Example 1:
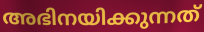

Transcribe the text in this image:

അഭിനയിക്കുന്നത്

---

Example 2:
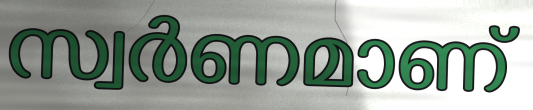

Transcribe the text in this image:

സ്വർണമാണ്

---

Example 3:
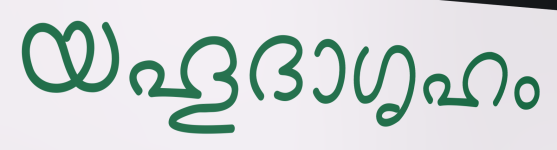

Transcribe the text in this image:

യഹൂദാഗൃഹം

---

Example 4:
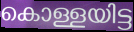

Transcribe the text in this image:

കൊള്ളയിട്ട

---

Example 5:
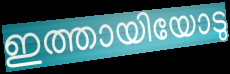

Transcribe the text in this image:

ഇത്തായിയോടു